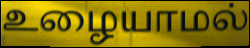
உழையாமல்